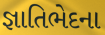
જ્ઞાતિભેદના